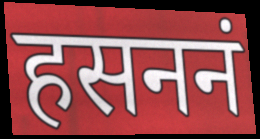
हसननं